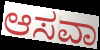
ಆಸವಾ